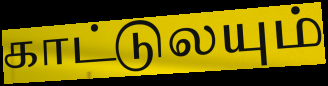
காட்டுலயும்